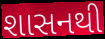
શાસનથી